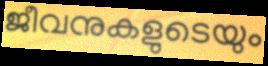
ജീവനുകളുടെയും